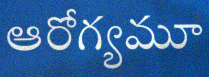
ఆరోగ్యమూ